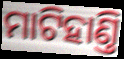
ମାଟିହାଣ୍ତି